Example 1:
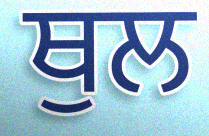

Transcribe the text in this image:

ਥੁਲ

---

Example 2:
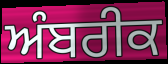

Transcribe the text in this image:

ਅੰਬਰੀਕ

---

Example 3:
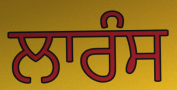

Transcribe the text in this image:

ਲਾਰੰਸ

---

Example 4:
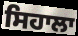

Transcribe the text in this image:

ਸਿਹਾਲਾ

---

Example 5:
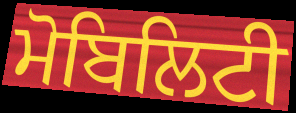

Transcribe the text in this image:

ਮੋਬਿਲਿਟੀ